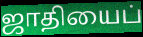
ஜாதியைப்